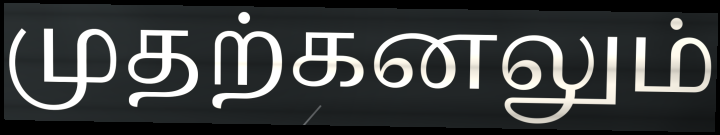
முதற்கனலும்